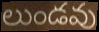
లుండవు